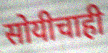
सोयीचाही